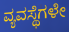
ವ್ಯವಸ್ಥೆಗಳೇ